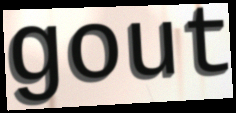
gout